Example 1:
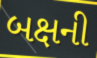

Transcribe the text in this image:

બક્ષની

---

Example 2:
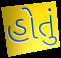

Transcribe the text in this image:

હોતું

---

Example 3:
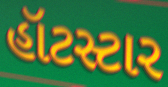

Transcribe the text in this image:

હૉટસ્ટાર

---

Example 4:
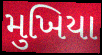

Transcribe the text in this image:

મુખિયા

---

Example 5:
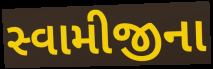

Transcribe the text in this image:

સ્વામીજીના